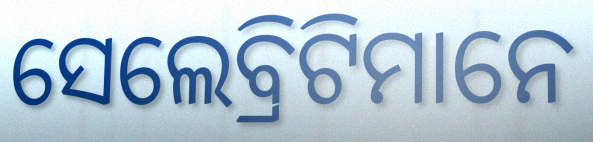
ସେଲେବ୍ରିଟିମାନେ